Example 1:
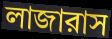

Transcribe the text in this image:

লাজারাস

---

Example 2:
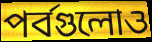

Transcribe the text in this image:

পর্বগুলোও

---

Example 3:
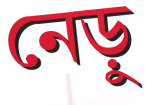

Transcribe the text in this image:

নেড়ু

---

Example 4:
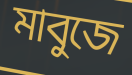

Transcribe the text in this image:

মাবুজে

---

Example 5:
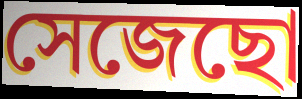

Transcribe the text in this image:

সেজেছো